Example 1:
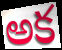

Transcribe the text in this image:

అక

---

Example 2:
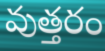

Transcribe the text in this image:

వుత్తరం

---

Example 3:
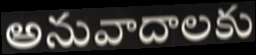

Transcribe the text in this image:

అనువాదాలకు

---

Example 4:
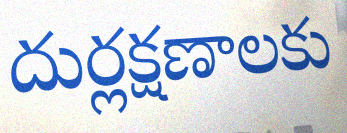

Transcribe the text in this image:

దుర్లక్షణాలకు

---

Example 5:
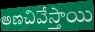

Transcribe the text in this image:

అణచివేస్తాయి